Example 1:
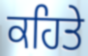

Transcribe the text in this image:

ਕਹਿਤੇ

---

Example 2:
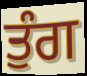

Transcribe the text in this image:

ਤੁੰਗ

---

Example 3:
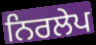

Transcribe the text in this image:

ਨਿਰਲੇਪ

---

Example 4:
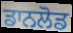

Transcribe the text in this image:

ਡਾਨਲੋਡ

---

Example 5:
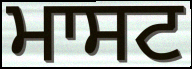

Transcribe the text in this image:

ਮਾਸਟ